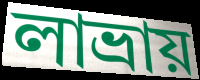
লাভ্ৰায়